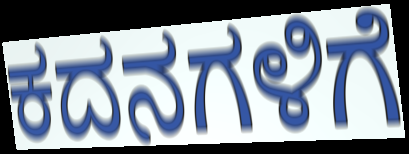
ಕದನಗಳಿಗೆ